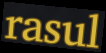
rasul